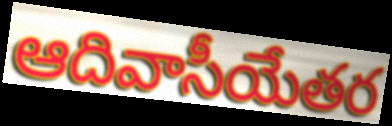
ఆదివాసీయేతర